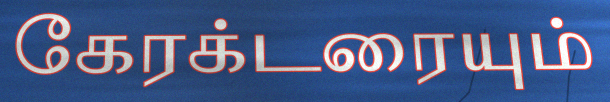
கேரக்டரையும்